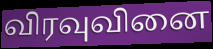
விரவுவினை